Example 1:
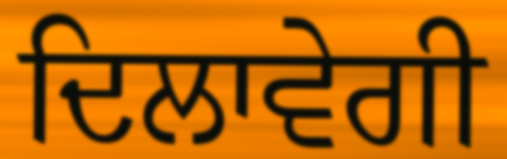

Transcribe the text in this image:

ਦਿਲਾਵੇਗੀ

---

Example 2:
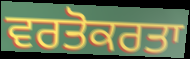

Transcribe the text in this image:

ਵਰਤੋਕਰਤਾ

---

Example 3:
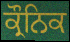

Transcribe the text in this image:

ਕ੍ਰੌਨਿਕ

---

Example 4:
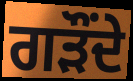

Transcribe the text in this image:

ਗੜੌਂਦੇ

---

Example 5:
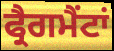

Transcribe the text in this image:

ਫ੍ਰੈਗਮੈਂਟਾਂ